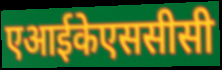
एआईकेएससीसी